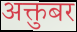
अक्तुबर